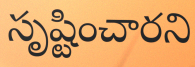
సృష్టించారని